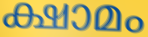
ക്ഷാമം